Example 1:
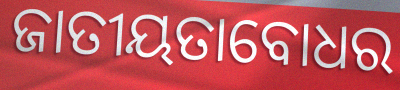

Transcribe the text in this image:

ଜାତୀୟତାବୋଧର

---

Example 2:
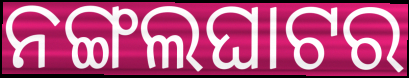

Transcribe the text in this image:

ନଙ୍ଗଲଘାଟର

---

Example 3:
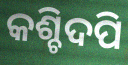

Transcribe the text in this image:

କଶ୍ଚିଦପି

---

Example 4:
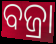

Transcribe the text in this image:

ବଜ୍ରା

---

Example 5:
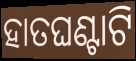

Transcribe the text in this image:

ହାତଘଣ୍ଟାଟି